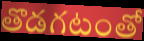
తొడగటంతో